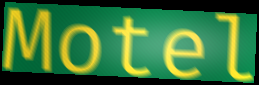
Motel